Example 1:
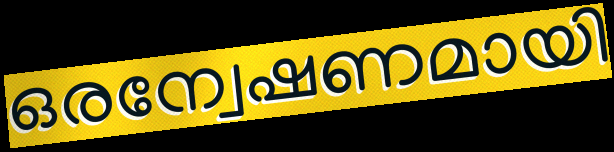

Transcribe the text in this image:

ഒരന്വേഷണമായി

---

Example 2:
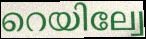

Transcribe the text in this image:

റെയില്വേ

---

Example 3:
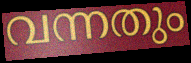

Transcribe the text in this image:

വന്നതും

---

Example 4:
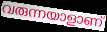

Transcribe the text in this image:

വരുന്നയാളാണ്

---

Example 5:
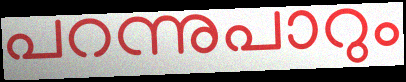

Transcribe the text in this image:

പറന്നുപാറും